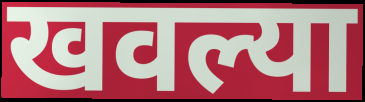
खवल्या